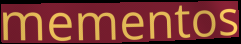
mementos